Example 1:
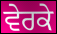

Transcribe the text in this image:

ਵੇਰਕੇ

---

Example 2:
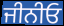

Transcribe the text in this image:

ਜੀਨੀਓ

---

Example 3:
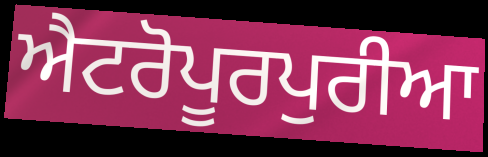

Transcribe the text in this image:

ਐਟਰੋਪੂਰਪੁਰੀਆ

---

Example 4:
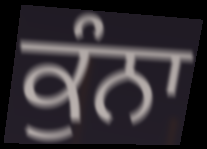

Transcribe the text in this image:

ਕੁੰਨਾ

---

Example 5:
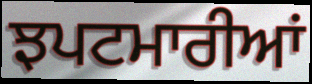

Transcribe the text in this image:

ਝਪਟਮਾਰੀਆਂ